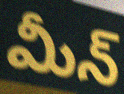
మీన్